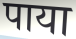
पाया